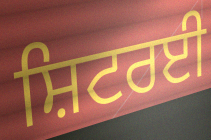
ਸ਼ਿਟਰਈ